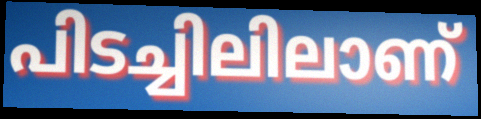
പിടച്ചിലിലാണ്